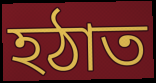
হঠাত